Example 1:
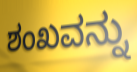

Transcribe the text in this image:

ಶಂಖವನ್ನು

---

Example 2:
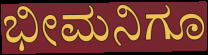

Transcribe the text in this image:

ಭೀಮನಿಗೂ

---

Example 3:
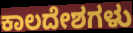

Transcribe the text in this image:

ಕಾಲದೇಶಗಳು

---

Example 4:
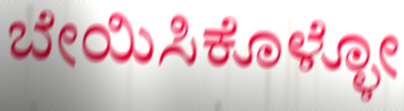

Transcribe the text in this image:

ಬೇಯಿಸಿಕೊಳ್ಳೋ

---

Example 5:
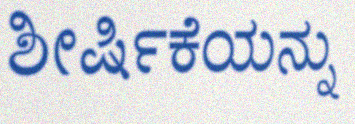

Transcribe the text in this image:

ಶೀರ್ಷಿಕೆಯನ್ನು